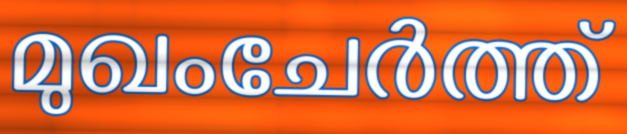
മുഖംചേർത്ത്